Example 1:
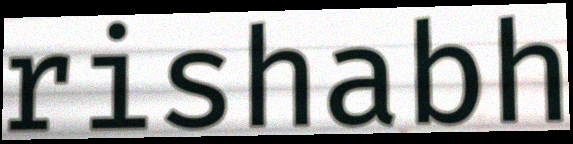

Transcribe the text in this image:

rishabh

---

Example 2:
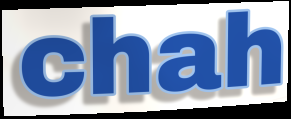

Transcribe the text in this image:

chah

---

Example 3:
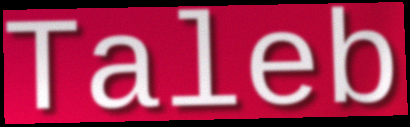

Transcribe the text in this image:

Taleb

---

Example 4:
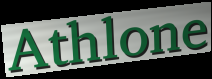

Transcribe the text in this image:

Athlone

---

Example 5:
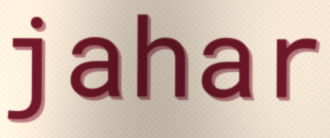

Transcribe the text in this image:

jahar